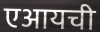
एआयची